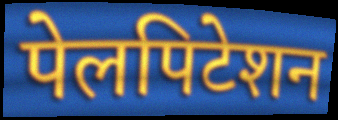
पेलपिटेशन